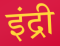
इंद्री